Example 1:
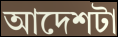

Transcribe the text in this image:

আদেশটা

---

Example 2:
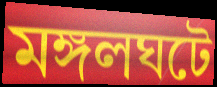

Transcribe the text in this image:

মঙ্গলঘটে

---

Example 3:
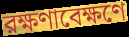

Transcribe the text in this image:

রক্ষণাবেক্ষণে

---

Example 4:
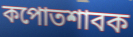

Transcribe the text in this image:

কপোতশাবক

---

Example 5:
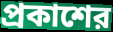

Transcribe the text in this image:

প্রকাশের